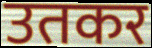
उतकर